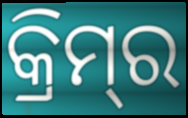
କ୍ରିମ୍‌ର